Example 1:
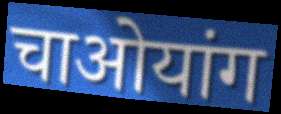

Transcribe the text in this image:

चाओयांग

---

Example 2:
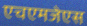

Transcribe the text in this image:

एचएमजेएस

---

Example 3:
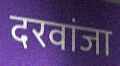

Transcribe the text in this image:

दरवांजा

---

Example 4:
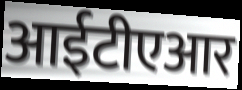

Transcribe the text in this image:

आईटीएआर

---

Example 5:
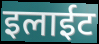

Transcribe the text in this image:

इलाईट